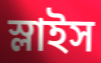
স্লাইস